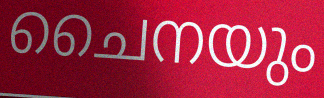
ചൈനയും